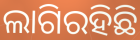
ଲାଗିରହିଛି